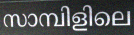
സാമ്പിളിലെ